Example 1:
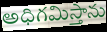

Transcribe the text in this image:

అధిగమిస్తాను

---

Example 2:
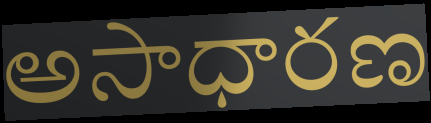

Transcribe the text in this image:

అసాధారణ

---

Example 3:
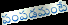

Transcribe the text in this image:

పంపడమంటే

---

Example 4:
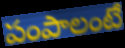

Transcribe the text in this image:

పంపాలంటే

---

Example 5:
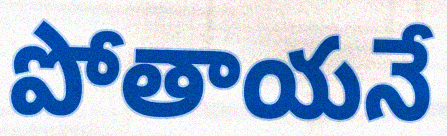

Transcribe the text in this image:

పోతాయనే